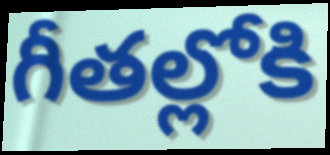
గీతల్లోకి